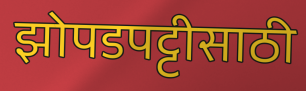
झोपडपट्टीसाठी